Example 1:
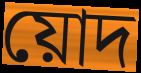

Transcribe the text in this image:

য়োদ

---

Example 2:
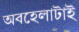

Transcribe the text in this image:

অবহেলাটাই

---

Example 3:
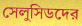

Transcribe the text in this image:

সেলুসিডদের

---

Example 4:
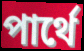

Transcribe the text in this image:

পার্থে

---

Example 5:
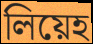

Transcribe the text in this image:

লিয়েহ